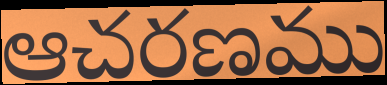
ఆచరణము